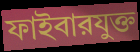
ফাইবারযুক্ত